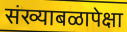
संख्याबळापेक्षा